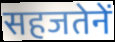
सहजतेनें